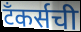
टँकर्सची